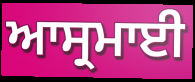
ਆਸ੍ਰਮਾਈ